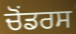
ਚੋਂਡਰਸ